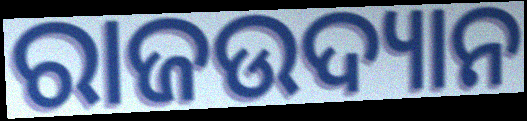
ରାଜଉଦ୍ୟାନ